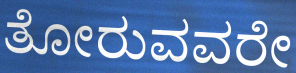
ತೋರುವವರೇ